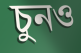
চুনও